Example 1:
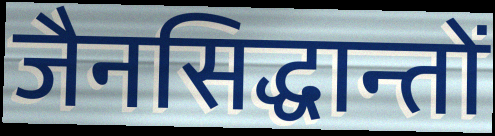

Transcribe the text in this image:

जैनसिद्धान्तों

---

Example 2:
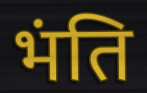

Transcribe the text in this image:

भंति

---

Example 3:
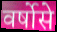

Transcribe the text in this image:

वर्षोसे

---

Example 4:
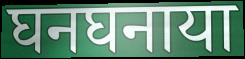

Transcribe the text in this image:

घनघनाया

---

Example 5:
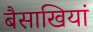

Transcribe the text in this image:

बैसाखियां